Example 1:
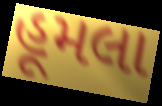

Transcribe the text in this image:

હૂમલા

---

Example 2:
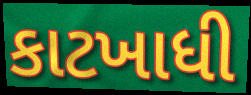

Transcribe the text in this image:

કાટખાધી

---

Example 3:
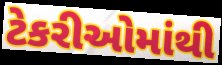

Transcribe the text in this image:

ટેકરીઓમાંથી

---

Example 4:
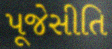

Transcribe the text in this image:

પૂજેસીતિ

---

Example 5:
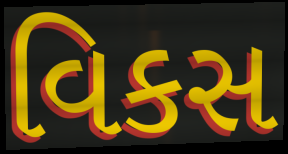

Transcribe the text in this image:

વિકસ